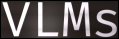
VLMs